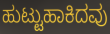
ಹುಟ್ಟುಹಾಕಿದವು